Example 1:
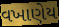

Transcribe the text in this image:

વખાણેય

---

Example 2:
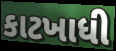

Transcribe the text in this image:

કાટખાધી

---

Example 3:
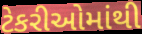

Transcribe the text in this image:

ટેકરીઓમાંથી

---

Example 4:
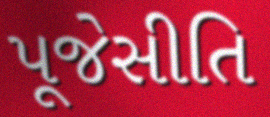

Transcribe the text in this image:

પૂજેસીતિ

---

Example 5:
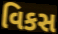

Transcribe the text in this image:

વિકસ